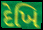
દેખિ